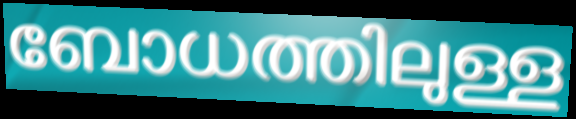
ബോധത്തിലുള്ള